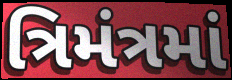
ત્રિમંત્રમાં